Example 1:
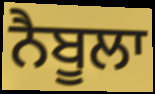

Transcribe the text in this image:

ਨੈਬੂਲਾ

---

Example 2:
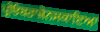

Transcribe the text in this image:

ਪ੍ਰੀਓਬਰਾਜ਼ੇਨਸਕਾਇਆ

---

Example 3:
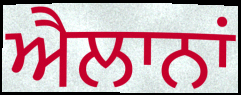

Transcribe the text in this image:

ਐਲਾਨਾਂ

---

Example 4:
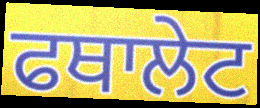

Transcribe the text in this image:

ਫਥਾਲੇਟ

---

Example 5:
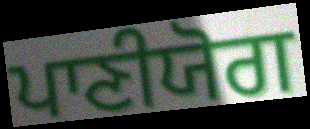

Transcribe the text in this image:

ਪਾਣੀਯੋਗ